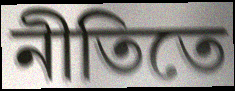
নীতিতে